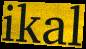
ikal